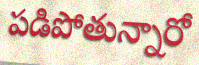
పడిపోతున్నారో